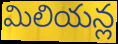
మిలియన్ల